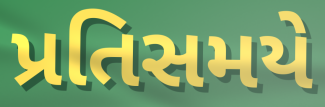
પ્રતિસમયે